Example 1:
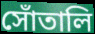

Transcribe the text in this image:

সোঁতালি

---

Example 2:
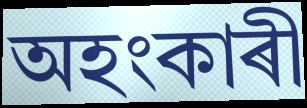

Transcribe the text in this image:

অহংকাৰী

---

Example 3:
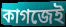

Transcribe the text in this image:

কাগজেই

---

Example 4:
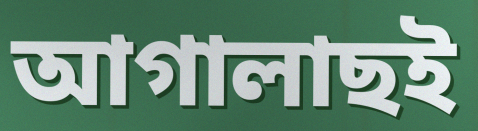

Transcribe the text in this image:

আগালাছই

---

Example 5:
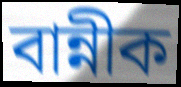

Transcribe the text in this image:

বান্নীক